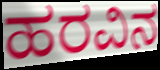
ಹರವಿನ